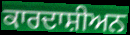
ਕਾਰਦਾਸ਼ੀਅਨ